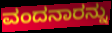
ವಂದನಾರನ್ನು